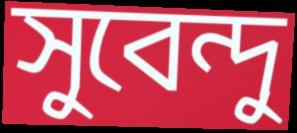
সুবেন্দু